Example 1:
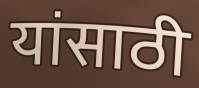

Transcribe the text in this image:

यांसाठी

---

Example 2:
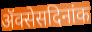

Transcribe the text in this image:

ॲक्सेसदिनांक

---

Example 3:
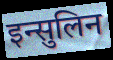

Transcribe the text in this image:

इन्सुलिन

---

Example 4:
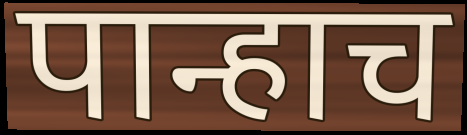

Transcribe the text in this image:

पान्हाच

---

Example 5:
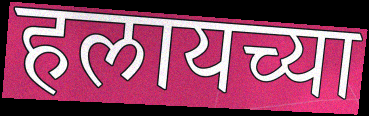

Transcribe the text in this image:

हलायच्या